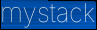
mystack